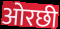
ओरछी